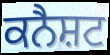
ਕਨੈਸ਼ਟ